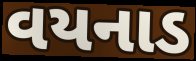
વયનાડ